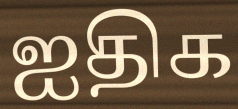
ஐதிக